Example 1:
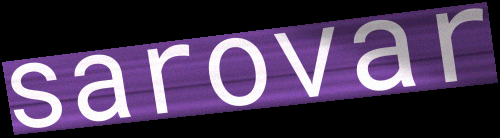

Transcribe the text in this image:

sarovar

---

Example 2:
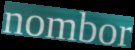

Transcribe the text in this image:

nombor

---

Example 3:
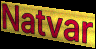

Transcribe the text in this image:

Natvar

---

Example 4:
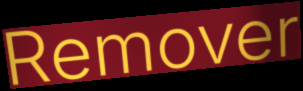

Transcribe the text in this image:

Remover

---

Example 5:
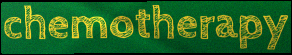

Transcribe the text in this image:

chemotherapy